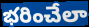
భరించేలా